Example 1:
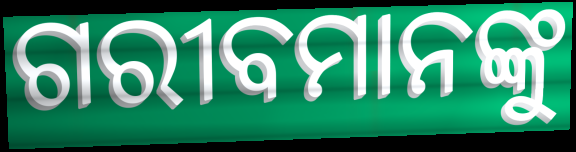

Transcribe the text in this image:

ଗରୀବମାନଙ୍କୁ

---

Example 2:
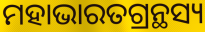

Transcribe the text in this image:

ମହାଭାରତଗ୍ରନ୍ଥସ୍ୟ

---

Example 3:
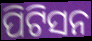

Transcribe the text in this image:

ପିଟିସନ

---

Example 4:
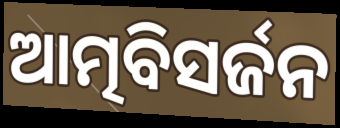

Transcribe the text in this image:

ଆତ୍ମବିସର୍ଜନ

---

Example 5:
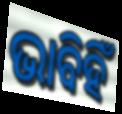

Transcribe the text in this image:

ଭାବିହିଁ